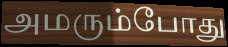
அமரும்போது